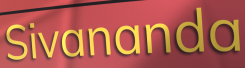
Sivananda